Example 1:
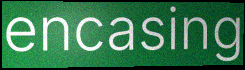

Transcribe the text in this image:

encasing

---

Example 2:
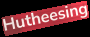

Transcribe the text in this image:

Hutheesing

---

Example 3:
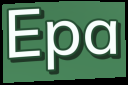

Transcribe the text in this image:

Epa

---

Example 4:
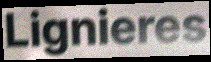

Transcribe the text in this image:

Lignieres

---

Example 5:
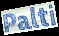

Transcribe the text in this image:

Palti